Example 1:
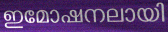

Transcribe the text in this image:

ഇമോഷനലായി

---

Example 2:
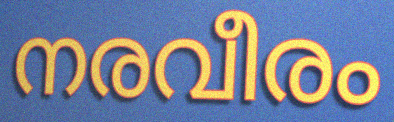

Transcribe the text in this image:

നരവീരം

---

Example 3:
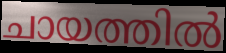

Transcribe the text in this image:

ചായത്തിൽ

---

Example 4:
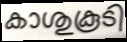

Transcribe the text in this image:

കാശുകൂടി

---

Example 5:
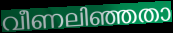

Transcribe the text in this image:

വീണലിഞ്ഞതാ